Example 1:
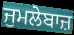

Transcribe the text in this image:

ਜੁਮਲੇਬਾਜ਼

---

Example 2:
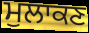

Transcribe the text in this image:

ਮੁਲਾਕਣ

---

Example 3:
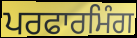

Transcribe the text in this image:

ਪਰਫਾਰਮਿੰਗ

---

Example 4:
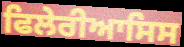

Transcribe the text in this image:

ਫਿਲੇਰੀਆਸਿਸ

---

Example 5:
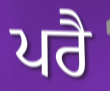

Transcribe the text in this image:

ਪਰੈ